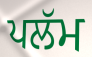
ਪਲੱਮ